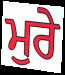
ਮੁਰੇ